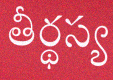
తీర్థస్య